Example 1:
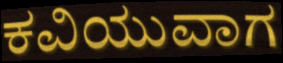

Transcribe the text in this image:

ಕವಿಯುವಾಗ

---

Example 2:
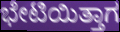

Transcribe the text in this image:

ಭೇಟಿಯಿತ್ತಾಗ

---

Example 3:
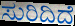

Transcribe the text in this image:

ಸುರಿದಿದೆ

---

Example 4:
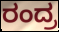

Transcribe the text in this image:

ರಂದ್ರ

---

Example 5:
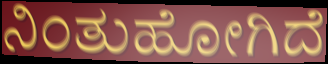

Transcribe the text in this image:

ನಿಂತುಹೋಗಿದೆ